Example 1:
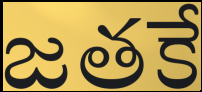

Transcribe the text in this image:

జతకే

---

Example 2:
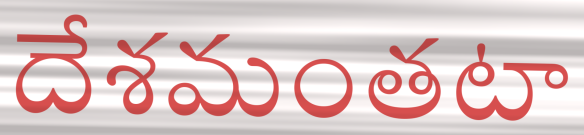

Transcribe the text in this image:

దేశమంతటా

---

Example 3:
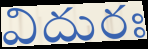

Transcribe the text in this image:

విదురః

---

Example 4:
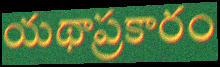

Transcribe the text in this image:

యథాప్రకారం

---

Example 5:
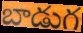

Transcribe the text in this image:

బాడుగ